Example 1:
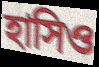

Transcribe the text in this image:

হাসিও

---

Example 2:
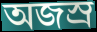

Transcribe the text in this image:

অজস্র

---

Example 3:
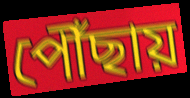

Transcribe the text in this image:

পৌঁছায়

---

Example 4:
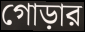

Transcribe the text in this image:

গোড়ার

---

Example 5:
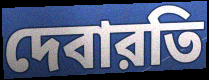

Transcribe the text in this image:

দেবারতি